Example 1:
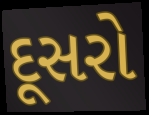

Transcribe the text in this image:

દૂસરો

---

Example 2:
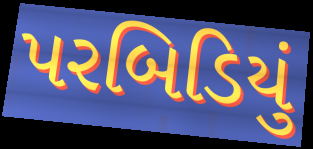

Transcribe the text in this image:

પરબિડિયું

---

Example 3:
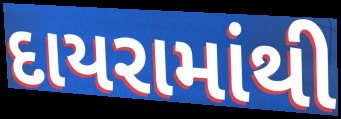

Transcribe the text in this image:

દાયરામાંથી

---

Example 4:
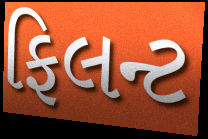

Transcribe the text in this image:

ફિલન્ટ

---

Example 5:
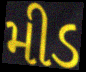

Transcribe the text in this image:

મીડ